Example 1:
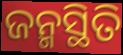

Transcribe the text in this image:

ଜନ୍ମସ୍ଥିତି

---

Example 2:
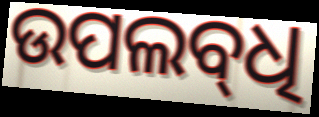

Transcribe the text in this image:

ଉପଲବ୍‌ଧି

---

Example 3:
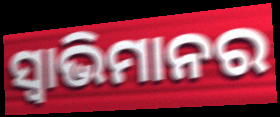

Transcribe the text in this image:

ସ୍ଵାଭିମାନର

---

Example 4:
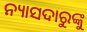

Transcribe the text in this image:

ନ୍ୟାସଦାରୁଙ୍କୁ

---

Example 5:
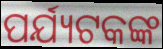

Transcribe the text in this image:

ପର୍ଯ୍ୟଟକଙ୍କ